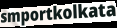
smportkolkata